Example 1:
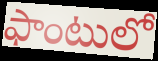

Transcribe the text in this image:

ఫాంటులో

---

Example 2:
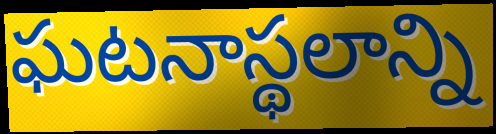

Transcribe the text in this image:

ఘటనాస్థలాన్ని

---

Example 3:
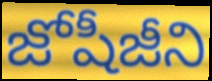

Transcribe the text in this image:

జోషీజీని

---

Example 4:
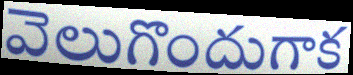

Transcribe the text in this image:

వెలుగొందుగాక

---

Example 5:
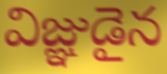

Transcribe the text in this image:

విజ్ఞుడైన